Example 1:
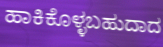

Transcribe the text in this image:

ಹಾಕಿಕೊಳ್ಳಬಹುದಾದ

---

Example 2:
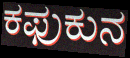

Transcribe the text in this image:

ಕಫುಕುನ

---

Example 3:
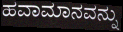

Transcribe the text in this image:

ಹವಾಮಾನವನ್ನು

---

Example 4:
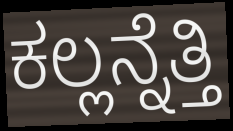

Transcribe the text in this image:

ಕಲ್ಲನ್ನೆತ್ತಿ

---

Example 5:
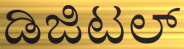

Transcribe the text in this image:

ಡಿಜಿಟಲ್